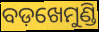
ବଡ଼ଖେମୁଣ୍ଡି